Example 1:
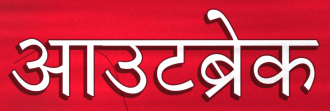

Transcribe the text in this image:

आउटब्रेक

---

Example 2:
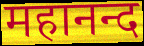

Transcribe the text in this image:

महानन्द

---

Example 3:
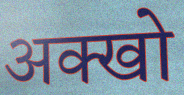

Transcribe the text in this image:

अक्खो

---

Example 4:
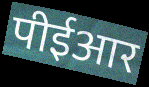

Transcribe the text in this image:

पीईआर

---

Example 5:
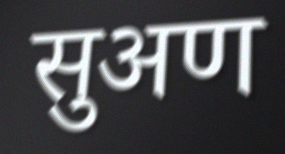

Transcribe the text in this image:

सुअण